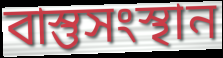
বাস্তুসংস্থান